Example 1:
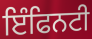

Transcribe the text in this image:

ਇੰਫਿਨਟੀ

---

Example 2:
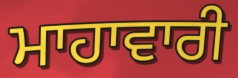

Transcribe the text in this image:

ਮਾਹਾਵਾਰੀ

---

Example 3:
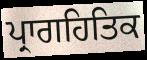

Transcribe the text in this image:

ਪ੍ਰਾਗਹਿਤਿਕ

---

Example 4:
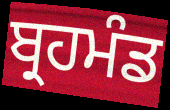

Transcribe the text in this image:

ਬ੍ਰਹਮੰਡ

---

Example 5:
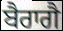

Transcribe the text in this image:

ਬੈਰਾਗੈ